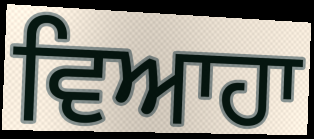
ਵਿਆਹਾ